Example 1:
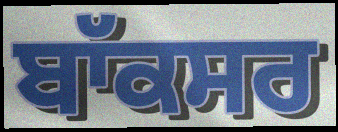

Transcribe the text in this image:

ਬਾੱਕਸਰ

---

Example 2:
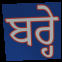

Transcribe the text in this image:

ਬਰ੍ਹੇ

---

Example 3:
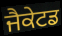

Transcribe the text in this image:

ਜੈਕੇਟਡ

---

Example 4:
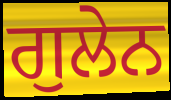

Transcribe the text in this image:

ਗੁਲੇਨ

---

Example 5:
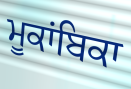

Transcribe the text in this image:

ਮੂਕਾਂਬਿਕਾ